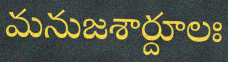
మనుజశార్దూలః